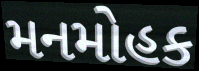
મનમોહક